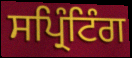
ਸਪ੍ਰਿੰਟਿੰਗ